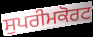
ਸੁਪਰੀਮਕੋਰਟ